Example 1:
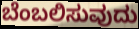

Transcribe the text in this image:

ಬೆಂಬಲಿಸುವುದು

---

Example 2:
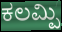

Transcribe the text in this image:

ಕಲಮ್ಪಿ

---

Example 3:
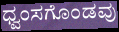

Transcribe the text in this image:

ಧ್ವಂಸಗೊಂಡವು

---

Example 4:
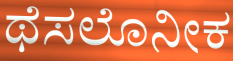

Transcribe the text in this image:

ಥೆಸಲೊನೀಕ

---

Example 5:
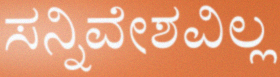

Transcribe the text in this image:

ಸನ್ನಿವೇಶವಿಲ್ಲ